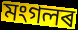
মংগলৰ